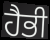
ਹੈਭੀ